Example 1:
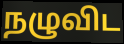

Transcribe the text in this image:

நழுவிட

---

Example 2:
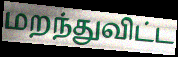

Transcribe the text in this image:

மறந்துவிட்ட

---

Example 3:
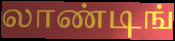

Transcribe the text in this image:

லாண்டிங்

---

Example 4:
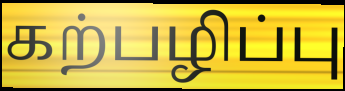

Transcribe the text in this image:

கற்பழிப்பு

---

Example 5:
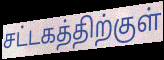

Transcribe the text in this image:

சட்டகத்திற்குள்